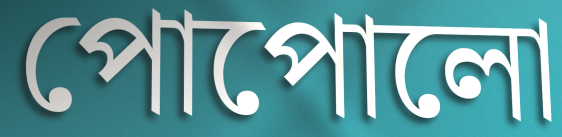
পোপোলো